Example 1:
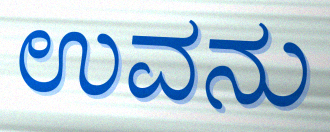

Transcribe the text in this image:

ಉವನು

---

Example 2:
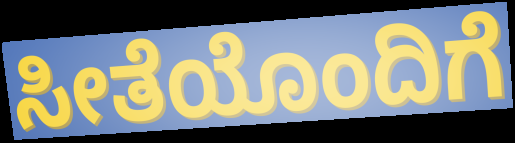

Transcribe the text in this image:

ಸೀತೆಯೊಂದಿಗೆ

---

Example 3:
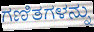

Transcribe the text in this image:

ಗಣಿತಗಳನ್ನು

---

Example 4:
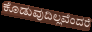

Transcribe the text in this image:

ಕೊಡುವುದಿಲ್ಲವೆಂದರೆ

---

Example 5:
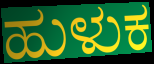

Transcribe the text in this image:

ಹುಳುಕ